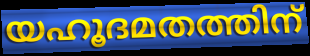
യഹൂദമതത്തിന്